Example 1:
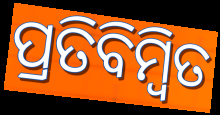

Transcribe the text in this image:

ପ୍ରତିବିମ୍ବିତ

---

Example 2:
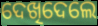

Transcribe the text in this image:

ଦେଖିଦେଲେ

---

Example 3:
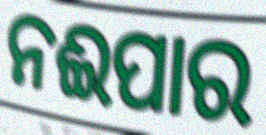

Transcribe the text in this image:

ନଈପାର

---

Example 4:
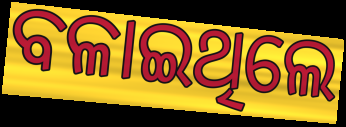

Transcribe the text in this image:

ବଳାଇଥିଲେ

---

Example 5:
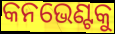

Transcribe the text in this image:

କନଭେଣ୍ଟକୁ